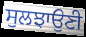
ਸੁਲਝਾਉਣੀ